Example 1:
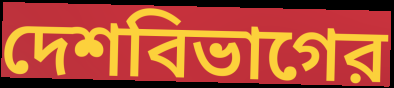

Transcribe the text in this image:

দেশবিভাগের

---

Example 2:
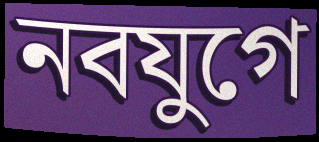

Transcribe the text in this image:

নবযুগে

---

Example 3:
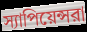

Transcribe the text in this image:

স্যাপিয়েন্সরা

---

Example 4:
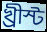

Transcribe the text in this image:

খ্রীস্ট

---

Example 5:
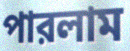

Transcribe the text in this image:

পারলাম